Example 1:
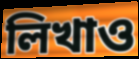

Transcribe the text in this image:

লিখাও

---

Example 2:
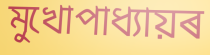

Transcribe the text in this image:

মুখোপাধ্যায়ৰ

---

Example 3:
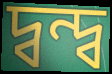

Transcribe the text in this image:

দ্বন্দ্ব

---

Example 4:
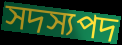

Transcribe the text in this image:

সদস্যপদ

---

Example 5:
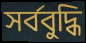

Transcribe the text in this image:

সৰ্ববুদ্ধি